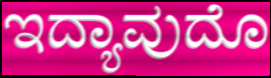
ಇದ್ಯಾವುದೊ